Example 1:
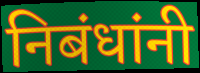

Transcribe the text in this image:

निबंधांनी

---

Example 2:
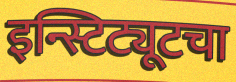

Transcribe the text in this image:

इन्स्टिट्यूटचा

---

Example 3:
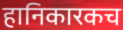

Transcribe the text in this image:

हानिकारकच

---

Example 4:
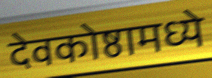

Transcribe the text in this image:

देवकोष्ठामध्ये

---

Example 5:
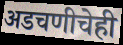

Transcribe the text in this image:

अडचणीचेही